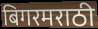
बिगरमराठी